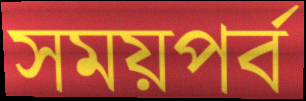
সময়পর্ব